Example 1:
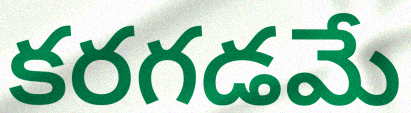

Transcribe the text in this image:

కరగడమే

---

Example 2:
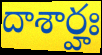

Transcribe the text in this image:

దాశార్హః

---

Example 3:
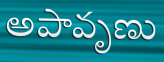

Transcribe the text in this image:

అపావృణు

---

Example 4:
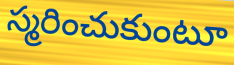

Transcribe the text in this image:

స్మరించుకుంటూ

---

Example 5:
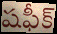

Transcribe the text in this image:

షఫీక్